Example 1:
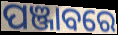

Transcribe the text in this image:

ପଞ୍ଜାବରେ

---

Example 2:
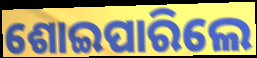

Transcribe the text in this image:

ଶୋଇପାରିଲେ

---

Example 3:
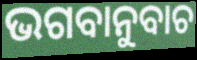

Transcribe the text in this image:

ଭଗବାନୁବାଚ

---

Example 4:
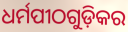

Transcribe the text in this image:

ଧର୍ମପୀଠଗୁଡ଼ିକର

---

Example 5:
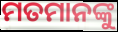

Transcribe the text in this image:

ମତମାନଙ୍କୁ